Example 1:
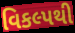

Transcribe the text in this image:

વિકલ્પથી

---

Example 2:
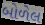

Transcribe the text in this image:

બોળેલ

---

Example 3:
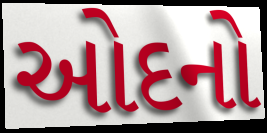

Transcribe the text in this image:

ઓદનો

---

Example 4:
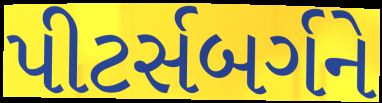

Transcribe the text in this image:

પીટર્સબર્ગને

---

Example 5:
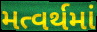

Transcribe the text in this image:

મત્વર્થમાં